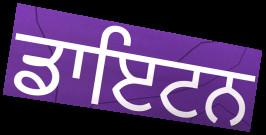
ਡਾਇਟਨ